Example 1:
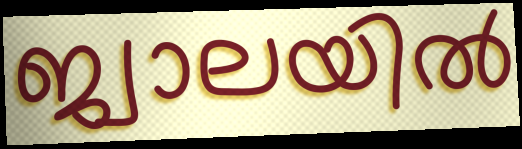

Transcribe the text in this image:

ജ്വാലയിൽ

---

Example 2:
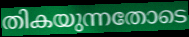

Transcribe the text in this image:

തികയുന്നതോടെ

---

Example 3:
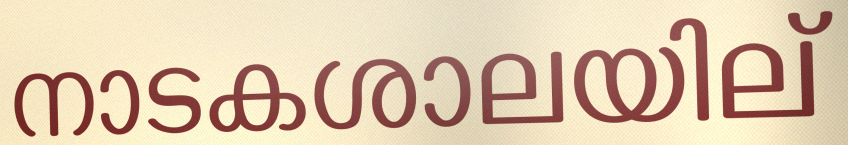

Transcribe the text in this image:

നാടകശാലയില്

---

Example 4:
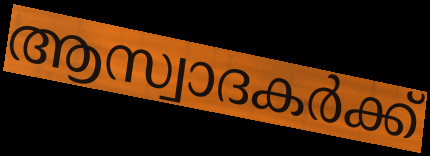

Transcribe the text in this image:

ആസ്വാദകർക്ക്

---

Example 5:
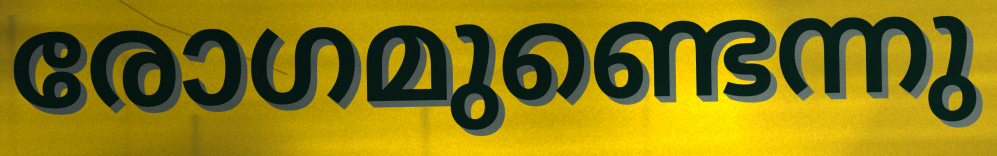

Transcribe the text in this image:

രോഗമുണ്ടെന്നു